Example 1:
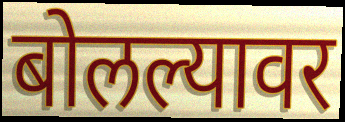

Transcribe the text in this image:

बोलल्यावर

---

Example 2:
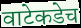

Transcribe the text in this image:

वाटेकडेच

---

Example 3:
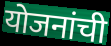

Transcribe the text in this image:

योजनांची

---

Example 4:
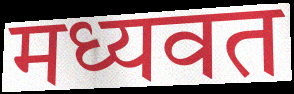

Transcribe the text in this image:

मध्यवत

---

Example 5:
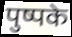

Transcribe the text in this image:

पुष्पके